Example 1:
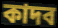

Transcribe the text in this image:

কাদব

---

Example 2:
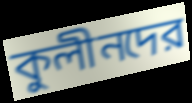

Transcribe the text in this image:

কুলীনদের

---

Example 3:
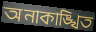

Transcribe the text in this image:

অনাকাঙ্খিত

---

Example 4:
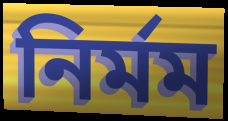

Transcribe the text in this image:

নির্মম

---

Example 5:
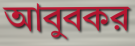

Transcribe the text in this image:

আবুবকর